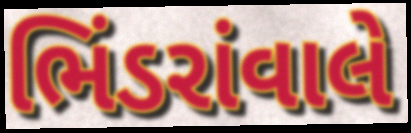
ભિંડરાંવાલે